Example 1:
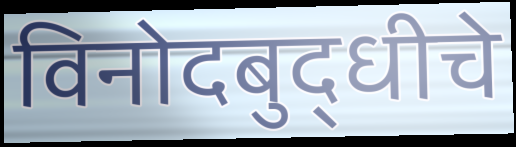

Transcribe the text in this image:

विनोदबुद्धीचे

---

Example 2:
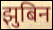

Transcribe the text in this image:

झुबिन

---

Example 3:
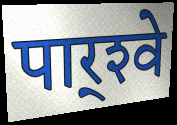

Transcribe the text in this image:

पार्श्वे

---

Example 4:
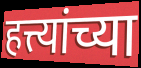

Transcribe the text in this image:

हत्त्यांच्या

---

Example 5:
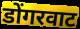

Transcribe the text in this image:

डोंगरवाट